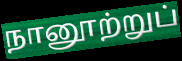
நானூற்றுப்